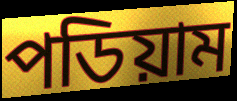
পডিয়াম